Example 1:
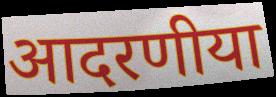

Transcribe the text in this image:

आदरणीया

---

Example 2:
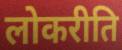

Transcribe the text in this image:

लोकरीति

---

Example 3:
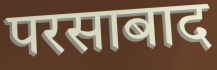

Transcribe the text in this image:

परसाबाद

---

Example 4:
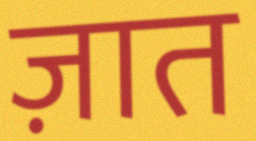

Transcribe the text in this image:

ज़ात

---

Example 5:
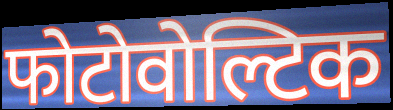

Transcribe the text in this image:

फोटोवोल्टिक